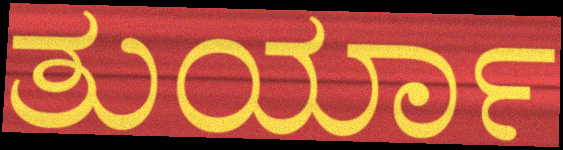
ತುರ್ಯಾ